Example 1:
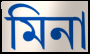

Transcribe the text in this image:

মিনা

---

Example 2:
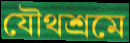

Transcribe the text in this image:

যৌথশ্রমে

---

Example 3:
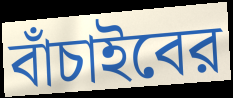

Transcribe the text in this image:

বাঁচাইবের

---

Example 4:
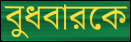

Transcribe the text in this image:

বুধবারকে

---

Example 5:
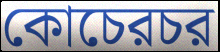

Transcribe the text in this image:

কোচেরচর